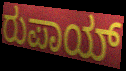
ರುಪಾಯ್